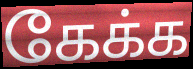
கேக்க